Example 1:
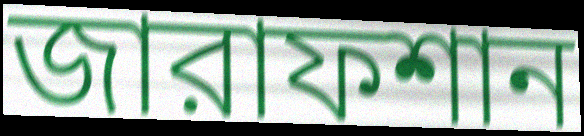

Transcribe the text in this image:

জারাফশান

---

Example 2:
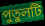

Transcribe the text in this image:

পুতুলটি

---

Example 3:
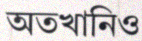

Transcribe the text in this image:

অতখানিও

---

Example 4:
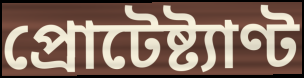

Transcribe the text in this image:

প্রোটেষ্ট্যাণ্ট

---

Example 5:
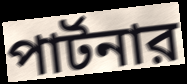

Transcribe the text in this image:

পার্টনার